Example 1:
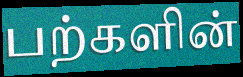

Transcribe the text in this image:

பற்களின்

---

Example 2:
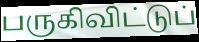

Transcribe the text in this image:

பருகிவிட்டுப்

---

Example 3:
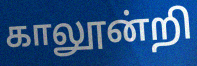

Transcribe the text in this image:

காலூன்றி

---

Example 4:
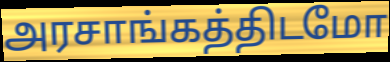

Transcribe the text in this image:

அரசாங்கத்திடமோ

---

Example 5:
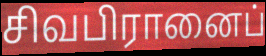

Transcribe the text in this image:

சிவபிரானைப்